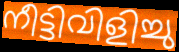
നീട്ടിവിളിച്ചു